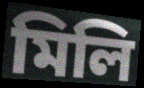
মিলি